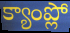
క్యాంప్లో